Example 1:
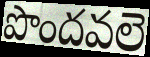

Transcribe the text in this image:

పొందవలె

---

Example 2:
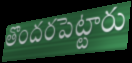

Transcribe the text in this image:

తొందరపెట్టారు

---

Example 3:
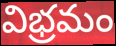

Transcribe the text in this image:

విభ్రమం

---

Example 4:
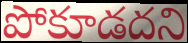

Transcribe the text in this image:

పోకూడదని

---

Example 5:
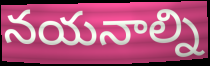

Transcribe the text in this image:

నయనాల్ని